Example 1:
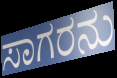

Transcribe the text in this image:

ಸಾಗರನು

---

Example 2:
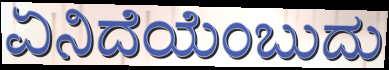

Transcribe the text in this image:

ಏನಿದೆಯೆಂಬುದು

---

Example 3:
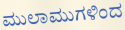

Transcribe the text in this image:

ಮುಲಾಮುಗಳಿಂದ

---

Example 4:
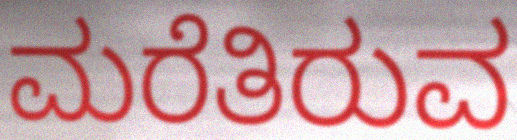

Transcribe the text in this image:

ಮರೆತಿರುವ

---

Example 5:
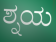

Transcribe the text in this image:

ಶ್ನಯ